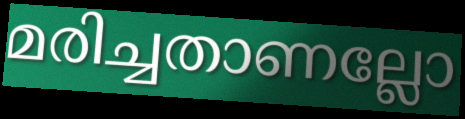
മരിച്ചതാണല്ലോ